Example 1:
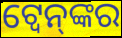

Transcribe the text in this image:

ଟ୍ୱେନ୍‌ଙ୍କର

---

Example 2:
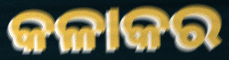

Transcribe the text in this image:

କଳାକର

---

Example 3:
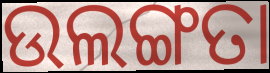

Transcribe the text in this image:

ଉଲଙ୍ଗତା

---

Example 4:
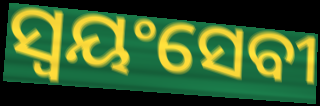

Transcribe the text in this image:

ସ୍ୱୟଂସେବୀ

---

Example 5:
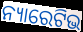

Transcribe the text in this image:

ନ୍ୟାରେଟିଭ